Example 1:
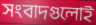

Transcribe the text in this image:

সংবাদগুলোই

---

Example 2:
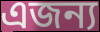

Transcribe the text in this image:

এজন্য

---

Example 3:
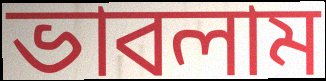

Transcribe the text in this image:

ভাবলাম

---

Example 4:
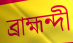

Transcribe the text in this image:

ব্রাহ্মন্দী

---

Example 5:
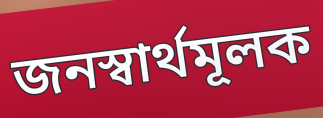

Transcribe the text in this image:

জনস্বার্থমূলক